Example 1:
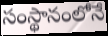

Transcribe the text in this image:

సంస్థానంలోనే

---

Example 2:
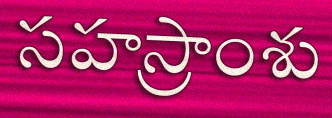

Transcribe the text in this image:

సహస్రాంశు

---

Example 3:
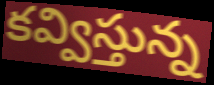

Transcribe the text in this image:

కవ్విస్తున్న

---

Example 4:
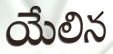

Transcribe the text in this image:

యేలిన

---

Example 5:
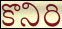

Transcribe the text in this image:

కొనిరి